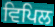
ਵਿਪਿਲ